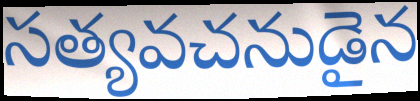
సత్యవచనుడైన